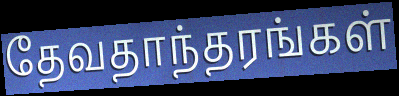
தேவதாந்தரங்கள்